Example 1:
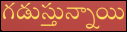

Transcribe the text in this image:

గడుస్తున్నాయి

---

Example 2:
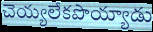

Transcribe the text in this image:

చెయ్యలేకపొయ్యాడు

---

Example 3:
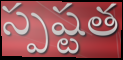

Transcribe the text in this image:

స్పష్టత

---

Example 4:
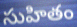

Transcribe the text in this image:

సుహితం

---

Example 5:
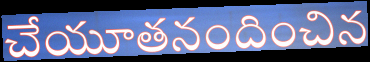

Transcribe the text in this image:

చేయూతనందించిన